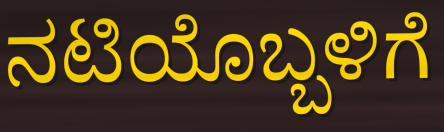
ನಟಿಯೊಬ್ಬಳಿಗೆ